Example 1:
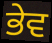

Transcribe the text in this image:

ਭੇਵ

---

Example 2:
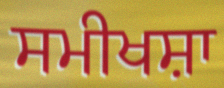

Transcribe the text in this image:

ਸਮੀਖਸ਼ਾ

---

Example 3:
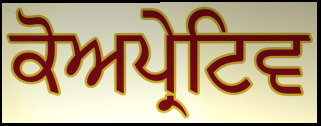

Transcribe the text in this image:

ਕੋਅਪ੍ਰੇਟਿਵ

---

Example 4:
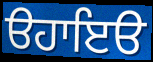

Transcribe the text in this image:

ੳਹਾਇੳ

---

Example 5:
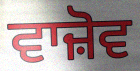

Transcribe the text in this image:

ਵਾਜ਼ੋਵ